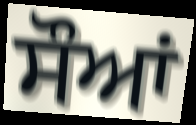
ਸੌਆਂ